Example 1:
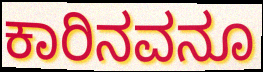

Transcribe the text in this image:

ಕಾರಿನವನೂ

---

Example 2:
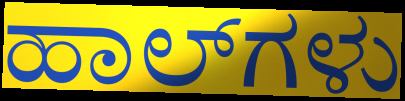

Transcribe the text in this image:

ಹಾಲ್‌ಗಳು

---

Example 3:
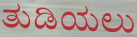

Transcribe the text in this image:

ತುಡಿಯಲು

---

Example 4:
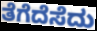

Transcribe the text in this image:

ತೆಗೆದೆಸೆದು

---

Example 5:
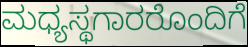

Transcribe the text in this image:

ಮಧ್ಯಸ್ಥಗಾರರೊಂದಿಗೆ